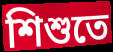
শিশুতে